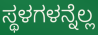
ಸ್ಥಳಗಳನ್ನೆಲ್ಲ